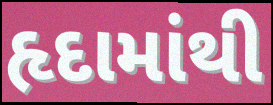
હૃદામાંથી